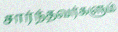
சார்ந்தவர்களும்